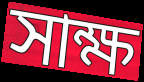
সাক্ষ